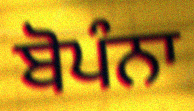
ਬੋਪੰਨਾ